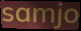
samjo